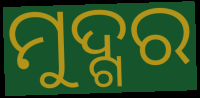
ମୁଦ୍ଗର